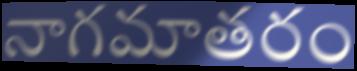
నాగమాతరం